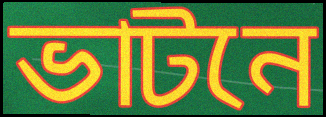
ভাটনে